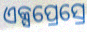
ଏକ୍ସପ୍ରେସ୍ରେ